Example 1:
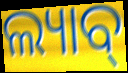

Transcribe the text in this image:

ଲ୍ୟାବ୍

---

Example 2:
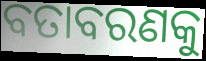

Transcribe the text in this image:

ବତାବରଣକୁ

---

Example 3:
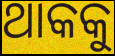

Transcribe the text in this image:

ଥାକକୁ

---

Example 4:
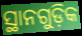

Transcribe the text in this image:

ସ୍ଥାନଗୁଡ଼ିକ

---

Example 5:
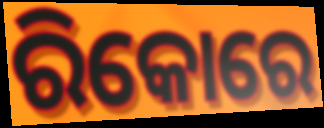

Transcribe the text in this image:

ରିକୋରେ